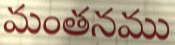
మంతనము